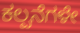
ಕಲ್ಪನೆಗಳೇ